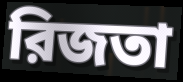
রিজতা